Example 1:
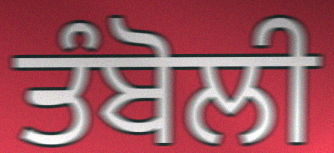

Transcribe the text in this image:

ਤੰਬੋਲੀ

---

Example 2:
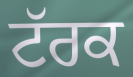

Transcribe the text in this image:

ਟੱਰਕ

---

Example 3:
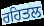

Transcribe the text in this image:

ਰਹਿਤਲ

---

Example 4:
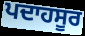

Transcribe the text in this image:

ਪਦਾਹਸੂਰ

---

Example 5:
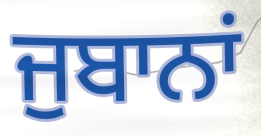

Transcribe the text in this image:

ਜੁਬਾਨਾਂ